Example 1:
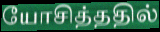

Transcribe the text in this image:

யோசித்ததில்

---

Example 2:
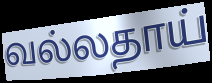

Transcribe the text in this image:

வல்லதாய்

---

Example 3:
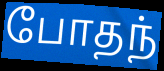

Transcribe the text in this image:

போதந்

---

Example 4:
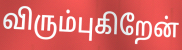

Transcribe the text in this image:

விரும்புகிறேன்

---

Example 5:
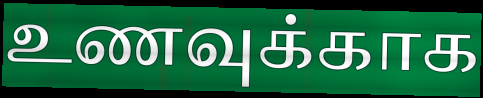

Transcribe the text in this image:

உணவுக்காக